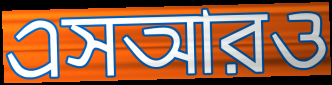
এসআরও